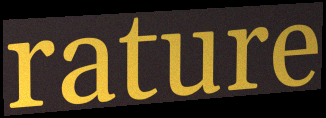
rature